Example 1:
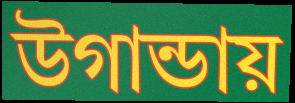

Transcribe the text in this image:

উগান্ডায়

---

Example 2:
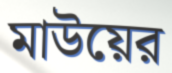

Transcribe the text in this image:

মাউয়ের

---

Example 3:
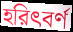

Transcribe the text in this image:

হরিৎবর্ণ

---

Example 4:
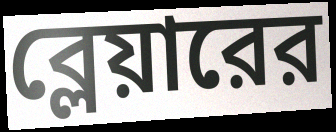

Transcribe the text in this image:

ব্লেয়ারের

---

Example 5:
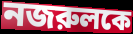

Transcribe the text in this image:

নজরুলকে